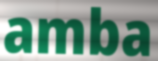
amba